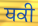
ਥਕੀ